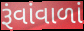
રૂંવાંવાળાં